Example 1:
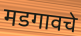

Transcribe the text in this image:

मडगावचे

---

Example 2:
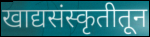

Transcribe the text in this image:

खाद्यसंस्कृतीतून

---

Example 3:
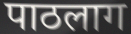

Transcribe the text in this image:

पाठलाग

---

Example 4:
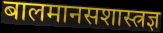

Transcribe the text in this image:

बालमानसशास्त्रज्ञ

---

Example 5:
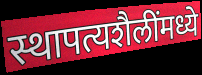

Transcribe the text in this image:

स्थापत्यशैलींमध्ये